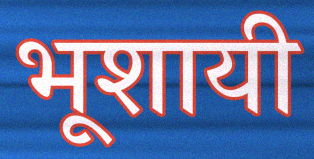
भूशायी